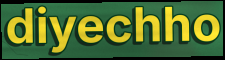
diyechho